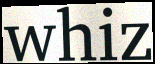
whiz